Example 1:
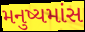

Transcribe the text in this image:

મનુષ્યમાંસ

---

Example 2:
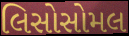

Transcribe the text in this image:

લિસોસોમલ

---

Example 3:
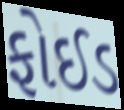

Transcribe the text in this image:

ફોઈડ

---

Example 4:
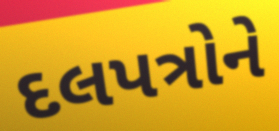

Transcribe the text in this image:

દલપત્રોને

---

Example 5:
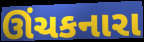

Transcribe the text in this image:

ઊંચકનારા